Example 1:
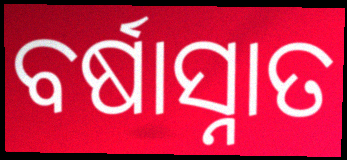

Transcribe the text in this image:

ବର୍ଷାସ୍ନାତ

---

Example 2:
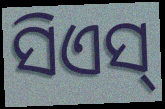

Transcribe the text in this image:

ସିଏସ୍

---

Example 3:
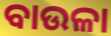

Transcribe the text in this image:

ବାଉଳା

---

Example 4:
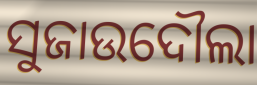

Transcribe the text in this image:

ସୁଜାଉଦୌଲା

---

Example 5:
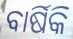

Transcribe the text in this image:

ବାର୍ଷିକି